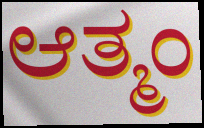
ಆತ್ಮಂ